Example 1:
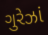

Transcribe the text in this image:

ગુરેઝાં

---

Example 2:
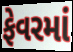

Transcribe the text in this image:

ફેવરમાં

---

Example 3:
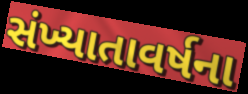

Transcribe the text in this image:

સંખ્યાતાવર્ષના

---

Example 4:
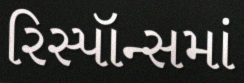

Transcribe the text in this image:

રિસ્પૉન્સમાં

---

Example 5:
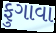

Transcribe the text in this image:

ફુગાવા